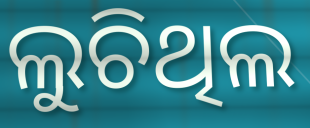
ଲୁଚିଥିଲ